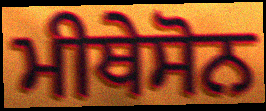
ਮੀਥੇਸੋਨ